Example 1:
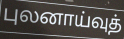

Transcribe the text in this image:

புலனாய்வுத்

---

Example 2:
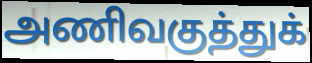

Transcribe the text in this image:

அணிவகுத்துக்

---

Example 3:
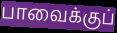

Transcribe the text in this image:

பாவைக்குப்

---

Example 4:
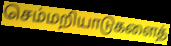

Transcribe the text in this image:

செம்மறியாடுகளைத்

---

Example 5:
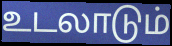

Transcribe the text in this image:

உடலாடும்